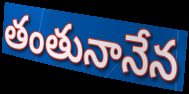
తంతునానేన